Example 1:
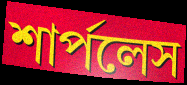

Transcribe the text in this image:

শার্পলেস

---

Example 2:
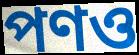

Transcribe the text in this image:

পণও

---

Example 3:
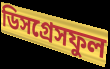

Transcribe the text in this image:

ডিসগ্রেসফুল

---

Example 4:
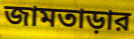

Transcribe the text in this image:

জামতাড়ার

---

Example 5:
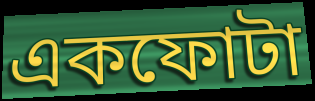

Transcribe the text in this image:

একফোটা